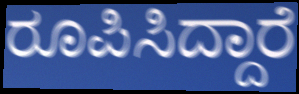
ರೂಪಿಸಿದ್ದಾರೆ